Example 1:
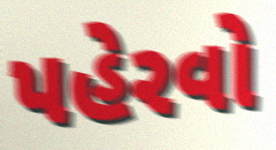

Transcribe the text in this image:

પહેરવો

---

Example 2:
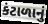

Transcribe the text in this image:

કંટાળાનું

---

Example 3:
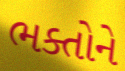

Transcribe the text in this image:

ભક્તોને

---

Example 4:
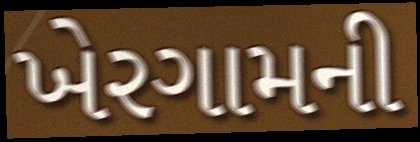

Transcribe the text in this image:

ખેરગામની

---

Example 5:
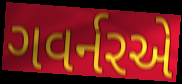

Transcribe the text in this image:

ગવર્નરએ